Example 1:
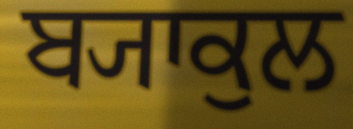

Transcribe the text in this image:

ਬ੍ਯਾਕੁਲ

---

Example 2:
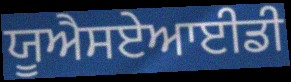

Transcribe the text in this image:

ਯੂਐਸਏਆਈਡੀ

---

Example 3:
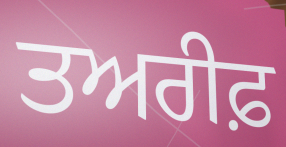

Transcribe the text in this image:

ਤਅਰੀਫ਼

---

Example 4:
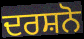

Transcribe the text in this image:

ਦਰਸ਼ਨੋ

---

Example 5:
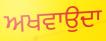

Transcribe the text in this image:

ਅਖਵਾਉਦਾ